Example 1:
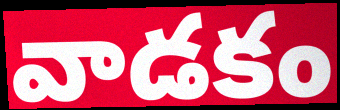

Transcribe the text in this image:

వాడకం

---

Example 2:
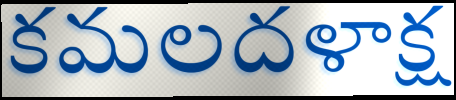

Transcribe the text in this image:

కమలదళాక్ష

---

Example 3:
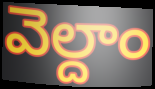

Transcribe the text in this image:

వెల్దాం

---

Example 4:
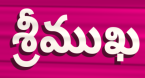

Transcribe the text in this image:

శ్రీముఖ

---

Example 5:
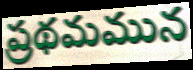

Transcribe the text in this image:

ప్రథమమున